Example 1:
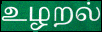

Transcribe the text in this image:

உழறல்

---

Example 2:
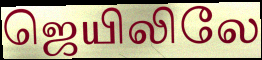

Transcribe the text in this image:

ஜெயிலிலே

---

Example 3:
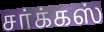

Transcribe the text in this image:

சர்க்கஸ்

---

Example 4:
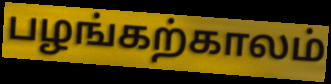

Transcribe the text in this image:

பழங்கற்காலம்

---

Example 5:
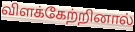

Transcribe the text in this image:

விளக்கேற்றினால்